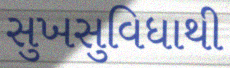
સુખસુવિધાથી